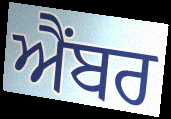
ਐਂਬਰ